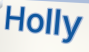
Holly